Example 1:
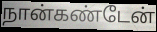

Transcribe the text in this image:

நான்கண்டேன்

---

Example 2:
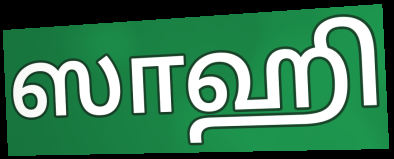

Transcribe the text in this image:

ஸாஹி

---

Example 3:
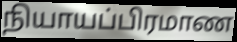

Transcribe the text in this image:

நியாயப்பிரமாண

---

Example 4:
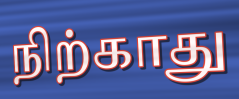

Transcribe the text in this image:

நிற்காது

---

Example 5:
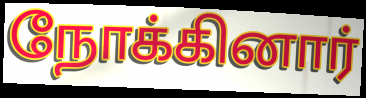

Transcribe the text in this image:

நோக்கினார்